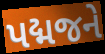
પદ્મજને